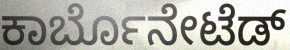
ಕಾರ್ಬೊನೇಟೆಡ್